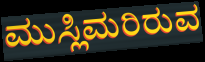
ಮುಸ್ಲಿಮರಿರುವ